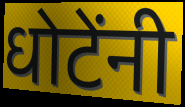
धोटेंनी